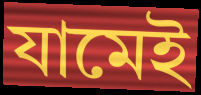
যামেই